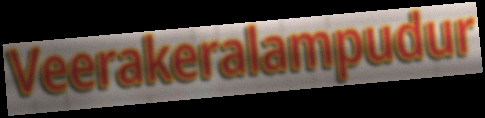
Veerakeralampudur